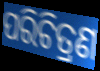
ପରିଚିତ୍ରଣ